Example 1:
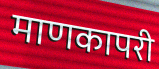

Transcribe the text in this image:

माणकापरी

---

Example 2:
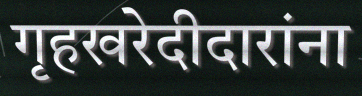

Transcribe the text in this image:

गृहखरेदीदारांना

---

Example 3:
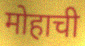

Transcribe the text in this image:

मोहाची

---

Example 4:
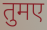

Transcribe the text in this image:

तुमए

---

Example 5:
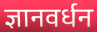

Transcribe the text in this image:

ज्ञानवर्धन